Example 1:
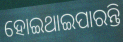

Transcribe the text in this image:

ହୋଇଥାଇପାରନ୍ତି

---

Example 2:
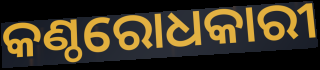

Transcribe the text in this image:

କଣ୍ଠରୋଧକାରୀ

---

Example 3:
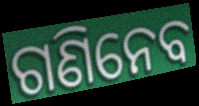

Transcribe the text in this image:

ଗଣିନେବ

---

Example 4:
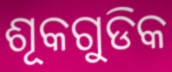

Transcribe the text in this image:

ଶୂକଗୁଡିକ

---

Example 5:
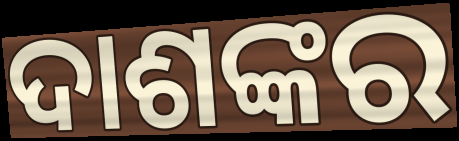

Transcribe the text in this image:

ଦାଶଙ୍କର